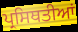
ਪ੍ਰਸਿਥਤੀਆਂ